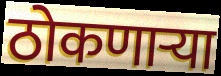
ठोकणाऱ्या